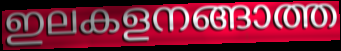
ഇലകളനങ്ങാത്ത